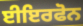
ਈਇਰਫੋਨ